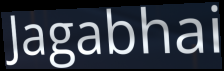
Jagabhai